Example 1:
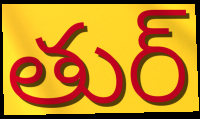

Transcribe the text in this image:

తుర్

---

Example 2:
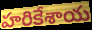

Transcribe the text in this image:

హరికేశాయ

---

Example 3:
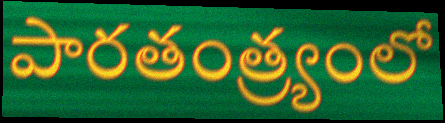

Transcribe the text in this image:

పారతంత్ర్యంలో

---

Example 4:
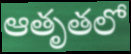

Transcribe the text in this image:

ఆతృతలో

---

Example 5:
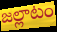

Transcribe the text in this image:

జల్లాటం